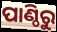
ପାଣ୍ଠିରୁ